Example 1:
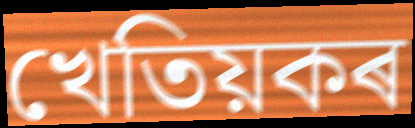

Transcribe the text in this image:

খেতিয়কৰ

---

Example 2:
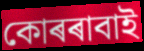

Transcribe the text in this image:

কোৰৰাবাই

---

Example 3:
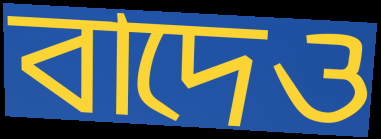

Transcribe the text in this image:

বাদেও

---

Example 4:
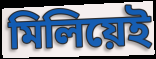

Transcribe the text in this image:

মিলিয়েই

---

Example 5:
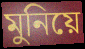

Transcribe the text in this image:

মুনিয়ে